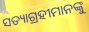
ସତ୍ୟାଗ୍ରହୀମାନଙ୍କୁ